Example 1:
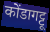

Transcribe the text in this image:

कोंडागट्टू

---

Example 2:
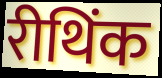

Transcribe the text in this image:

रीथिंक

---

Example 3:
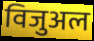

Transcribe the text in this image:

विजुअल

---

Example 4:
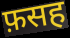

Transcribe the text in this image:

फ़सह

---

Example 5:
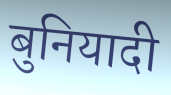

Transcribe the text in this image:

बुनियादी